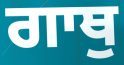
ਗਾਥੁ